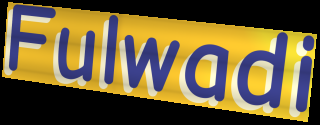
Fulwadi